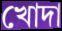
খোদা